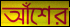
আঁশের